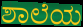
ಶಾಲೆಯ